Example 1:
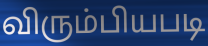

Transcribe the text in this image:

விரும்பியபடி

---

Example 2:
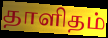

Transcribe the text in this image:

தாளிதம்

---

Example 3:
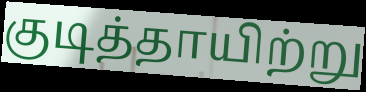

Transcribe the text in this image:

குடித்தாயிற்று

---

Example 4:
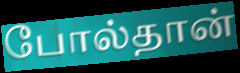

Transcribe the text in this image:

போல்தான்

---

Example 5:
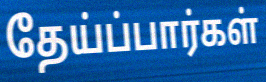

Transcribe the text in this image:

தேய்ப்பார்கள்